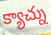
క్యాచ్ను